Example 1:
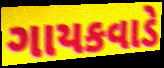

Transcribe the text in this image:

ગાયકવાડે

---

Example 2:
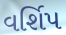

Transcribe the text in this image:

વર્શિપ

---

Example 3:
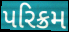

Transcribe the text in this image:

પરિક્રમ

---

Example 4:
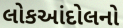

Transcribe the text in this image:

લોકઆંદોલનો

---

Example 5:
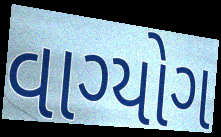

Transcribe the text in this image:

વાગ્યોગ